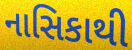
નાસિકાથી